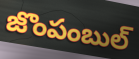
జొంపంబుల్